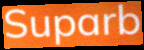
Suparb